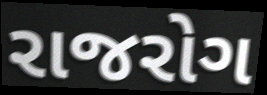
રાજરોગ